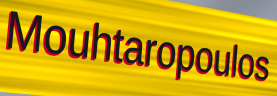
Mouhtaropoulos